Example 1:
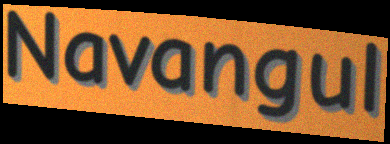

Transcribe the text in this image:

Navangul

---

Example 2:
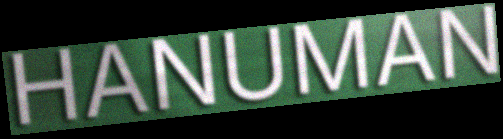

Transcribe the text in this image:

HANUMAN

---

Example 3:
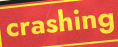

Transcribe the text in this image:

crashing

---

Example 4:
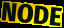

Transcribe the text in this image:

NODE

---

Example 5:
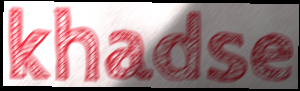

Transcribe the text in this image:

khadse